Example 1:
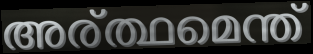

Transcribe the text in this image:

അര്ത്ഥമെന്ത്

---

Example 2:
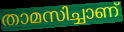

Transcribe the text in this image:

താമസിച്ചാണ്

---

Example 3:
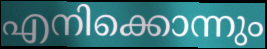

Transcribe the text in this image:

എനിക്കൊന്നും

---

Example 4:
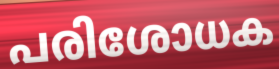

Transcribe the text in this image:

പരിശോധക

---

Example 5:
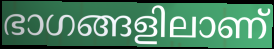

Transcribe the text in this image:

ഭാഗങ്ങളിലാണ്